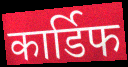
कार्डिफ